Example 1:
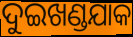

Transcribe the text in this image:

ଦୁଇଖଣ୍ଡଯାକ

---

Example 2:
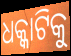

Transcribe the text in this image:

ଧକ୍କାଟିକୁ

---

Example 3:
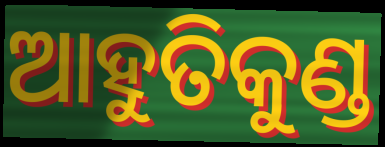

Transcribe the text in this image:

ଆହୁତିକୁଣ୍ଡ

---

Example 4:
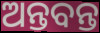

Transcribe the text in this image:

ଅନ୍ତବନ୍ତ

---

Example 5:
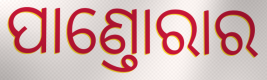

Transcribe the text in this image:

ପାଣ୍ତୋରାର